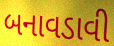
બનાવડાવી